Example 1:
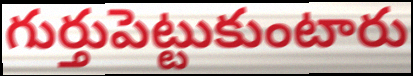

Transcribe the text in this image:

గుర్తుపెట్టుకుంటారు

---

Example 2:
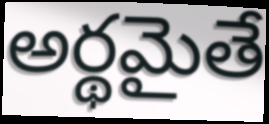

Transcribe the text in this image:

అర్థమైతే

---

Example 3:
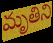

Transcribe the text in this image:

మృతిని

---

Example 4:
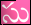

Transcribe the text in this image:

సు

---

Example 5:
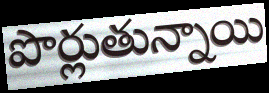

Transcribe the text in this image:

పొర్లుతున్నాయి